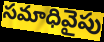
సమాధివైపు